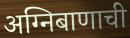
अग्निबाणाची